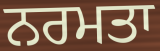
ਨਰਮਤਾ